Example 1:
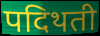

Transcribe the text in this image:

पदिथती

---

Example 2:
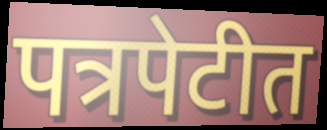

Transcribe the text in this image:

पत्रपेटीत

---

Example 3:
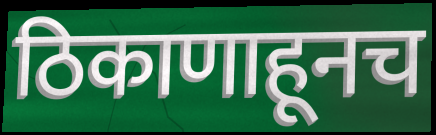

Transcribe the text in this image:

ठिकाणाहूनच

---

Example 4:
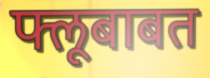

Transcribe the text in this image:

फ्लूबाबत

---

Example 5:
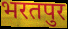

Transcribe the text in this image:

भरतपुर